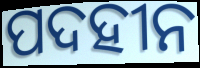
ପଦହୀନ